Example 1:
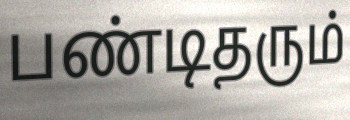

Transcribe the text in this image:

பண்டிதரும்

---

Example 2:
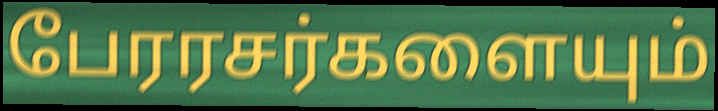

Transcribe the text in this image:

பேரரசர்களையும்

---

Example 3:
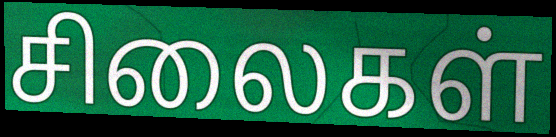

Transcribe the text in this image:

சிலைகள்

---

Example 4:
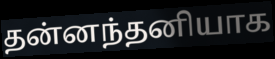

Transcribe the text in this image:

தன்னந்தனியாக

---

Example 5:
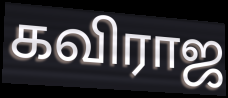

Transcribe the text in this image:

கவிராஜ